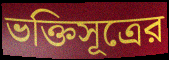
ভক্তিসূত্রের